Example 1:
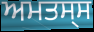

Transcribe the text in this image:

ਅਮਤਸ੍ਸ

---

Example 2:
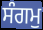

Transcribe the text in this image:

ਸੰਗਮੁ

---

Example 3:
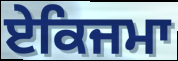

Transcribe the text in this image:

ਏਕਿਜਮਾ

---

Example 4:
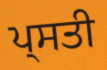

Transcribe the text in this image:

ਪ੍ਸਤੀ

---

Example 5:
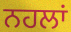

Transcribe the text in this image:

ਨਹਲਾਂ